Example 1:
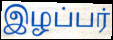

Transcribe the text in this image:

இழப்பர்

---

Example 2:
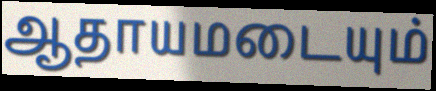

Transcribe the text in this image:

ஆதாயமடையும்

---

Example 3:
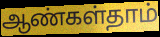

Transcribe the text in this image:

ஆண்கள்தாம்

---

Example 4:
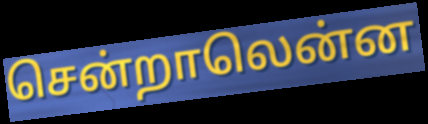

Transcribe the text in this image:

சென்றாலென்ன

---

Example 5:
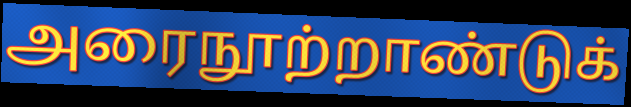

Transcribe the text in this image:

அரைநூற்றாண்டுக்